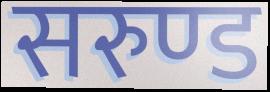
सरुण्ड